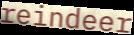
reindeer